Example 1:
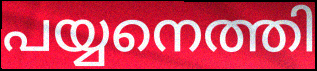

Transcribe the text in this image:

പയ്യനെത്തി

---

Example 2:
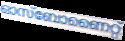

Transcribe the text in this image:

ഓസ്ബോണൈറ്റ്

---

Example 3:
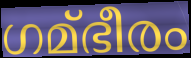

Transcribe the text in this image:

ഗമ്ഭീരം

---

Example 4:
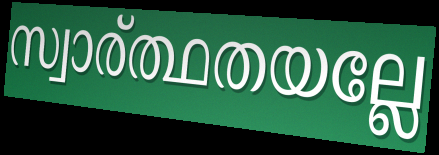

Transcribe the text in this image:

സ്വാര്ത്ഥതയല്ലേ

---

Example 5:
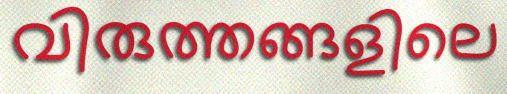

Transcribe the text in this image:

വിരുത്തങ്ങളിലെ